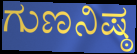
ಗುಣನಿಷ್ಠ